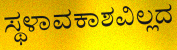
ಸ್ಥಳಾವಕಾಶವಿಲ್ಲದ